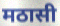
मठासी